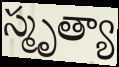
స్మృత్యా